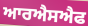
ਆਰਐਸਐਫ